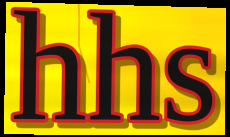
hhs